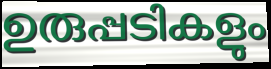
ഉരുപ്പടികളും